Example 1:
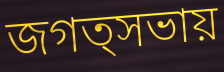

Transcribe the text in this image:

জগত্সভায়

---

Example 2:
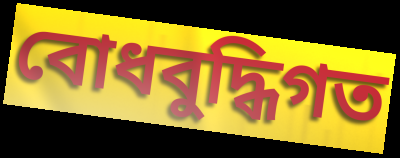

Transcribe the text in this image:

বোধবুদ্ধিগত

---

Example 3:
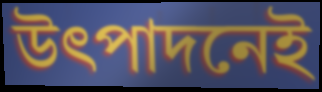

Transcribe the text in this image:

উৎপাদনেই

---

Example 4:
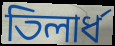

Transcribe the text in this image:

তিলার্ধ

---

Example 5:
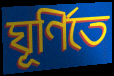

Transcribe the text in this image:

ঘূর্ণিতে